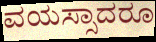
ವಯಸ್ಸಾದರೂ